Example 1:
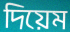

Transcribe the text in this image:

দিয়েম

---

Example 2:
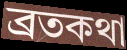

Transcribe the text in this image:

ব্রতকথা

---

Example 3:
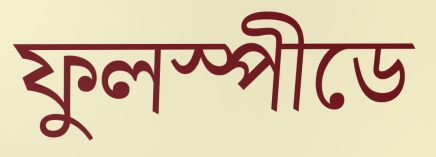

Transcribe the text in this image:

ফুলস্পীডে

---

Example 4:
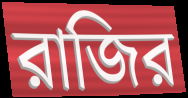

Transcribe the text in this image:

রাজির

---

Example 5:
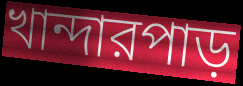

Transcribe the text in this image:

খান্দারপাড়